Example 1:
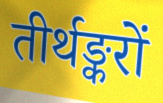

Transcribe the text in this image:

तीर्थङ्करों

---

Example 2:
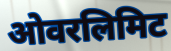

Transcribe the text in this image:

ओवरलिमिट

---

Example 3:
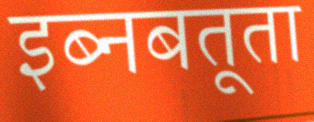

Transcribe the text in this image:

इब्नबतूता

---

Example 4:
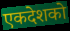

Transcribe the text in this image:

एकदेशको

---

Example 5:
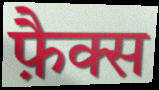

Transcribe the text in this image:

फ़ैक्स